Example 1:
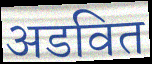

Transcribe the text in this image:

अडवित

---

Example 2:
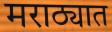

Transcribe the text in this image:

मराठ्यात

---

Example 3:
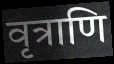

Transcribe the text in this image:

वृत्राणि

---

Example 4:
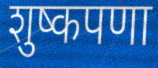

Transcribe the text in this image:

शुष्कपणा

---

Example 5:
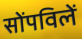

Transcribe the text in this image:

सोंपविलें